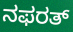
ನಫರತ್